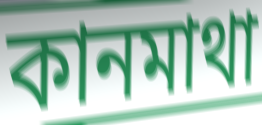
কানমাথা